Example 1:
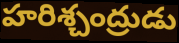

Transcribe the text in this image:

హరిశ్చంద్రుడు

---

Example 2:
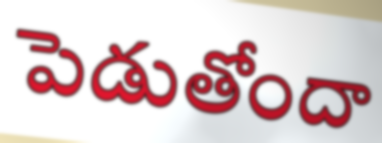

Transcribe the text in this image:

పెడుతోందా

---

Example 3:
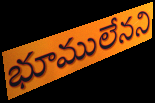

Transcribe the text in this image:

భూములేనని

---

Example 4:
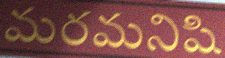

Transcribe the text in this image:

మరమనిషి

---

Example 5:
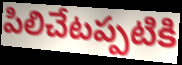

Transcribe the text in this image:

పిలిచేటప్పటికి